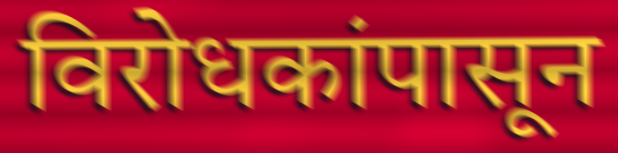
विरोधकांपासून